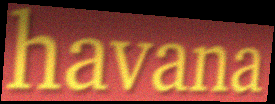
havana